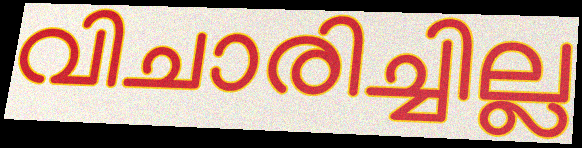
വിചാരിച്ചില്ല